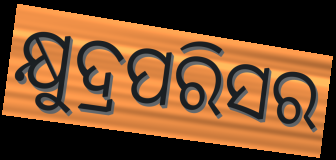
କ୍ଷୁଦ୍ରପରିସର